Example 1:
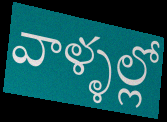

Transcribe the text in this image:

వాళ్ళల్లో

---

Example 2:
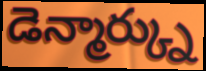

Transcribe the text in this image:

డెన్మార్క్ను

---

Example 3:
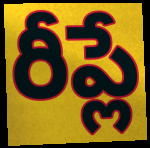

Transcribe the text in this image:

రీప్లే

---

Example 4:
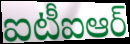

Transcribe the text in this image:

ఐటీఐఆర్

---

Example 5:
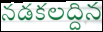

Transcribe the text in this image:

నడకలద్దిన